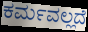
ಕರ್ಮವಲ್ಲದೆ